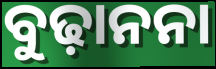
ବୁଢ଼ାନନା